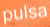
pulsa